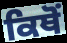
ਕਿਥੋਂ